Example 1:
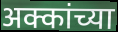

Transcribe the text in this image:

अक्कांच्या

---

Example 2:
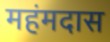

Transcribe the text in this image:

महंमदास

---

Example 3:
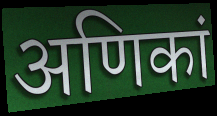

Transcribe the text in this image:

अणिकां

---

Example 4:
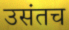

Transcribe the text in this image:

उसंतच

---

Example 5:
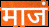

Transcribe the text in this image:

माजं